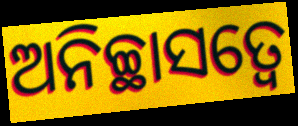
ଅନିଚ୍ଛାସତ୍ୱେ